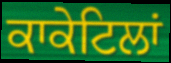
ਕਾਕੇਟਿਲਾਂ